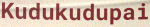
Kudukudupai